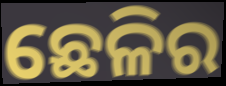
ଛେଳିର